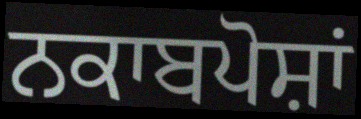
ਨਕਾਬਪੋਸ਼ਾਂ